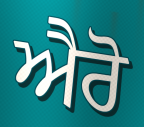
ਐਰੋ